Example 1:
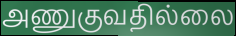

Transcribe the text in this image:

அணுகுவதில்லை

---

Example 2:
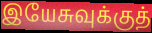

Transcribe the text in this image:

இயேசுவுக்குத்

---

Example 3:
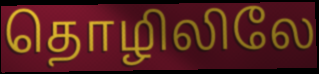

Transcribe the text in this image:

தொழிலிலே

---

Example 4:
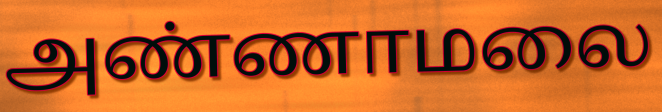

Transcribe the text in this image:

அண்ணாமலை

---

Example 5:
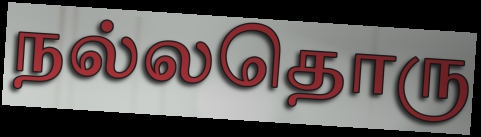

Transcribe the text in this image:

நல்லதொரு